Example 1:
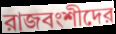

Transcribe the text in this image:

রাজবংশীদের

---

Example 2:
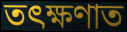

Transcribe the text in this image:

তৎক্ষণাত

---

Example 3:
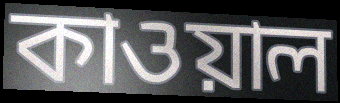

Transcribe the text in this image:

কাওয়াল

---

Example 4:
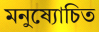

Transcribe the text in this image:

মনুষ্যোচিত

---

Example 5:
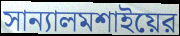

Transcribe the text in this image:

সান্যালমশাইয়ের